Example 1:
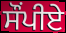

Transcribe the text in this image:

ਸੌਂਪੀਏ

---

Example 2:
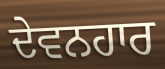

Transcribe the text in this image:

ਦੇਵਨਹਾਰ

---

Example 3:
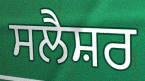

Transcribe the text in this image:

ਸਲੈਸ਼ਰ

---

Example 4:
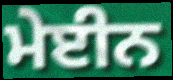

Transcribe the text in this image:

ਮੇਈਨ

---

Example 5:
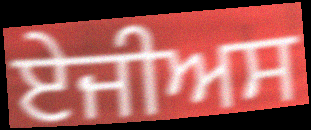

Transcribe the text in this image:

ਏਜੀਅਸ